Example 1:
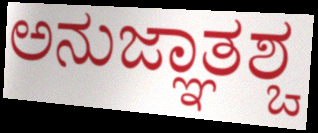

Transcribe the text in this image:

ಅನುಜ್ಞಾತಶ್ಚ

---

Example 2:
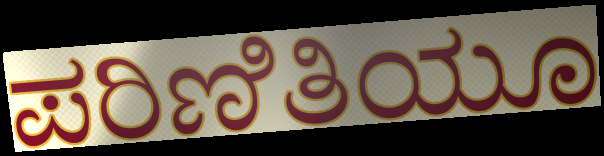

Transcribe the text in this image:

ಪರಿಣಿತಿಯೂ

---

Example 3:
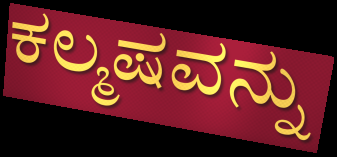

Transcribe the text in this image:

ಕಲ್ಮಷವನ್ನು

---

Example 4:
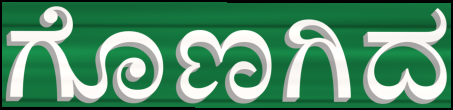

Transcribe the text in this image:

ಗೊಣಗಿದ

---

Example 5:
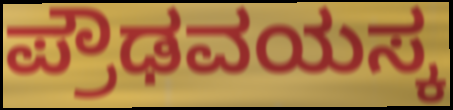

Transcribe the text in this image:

ಪ್ರೌಢವಯಸ್ಕ